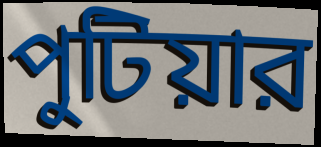
পুটিয়ার